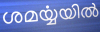
ശമൎയ്യയിൽ